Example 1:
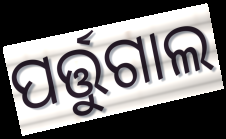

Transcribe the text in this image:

ପର୍ତ୍ତୁଗାଲ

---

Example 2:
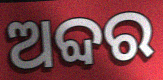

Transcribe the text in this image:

ଅବ୍ଦର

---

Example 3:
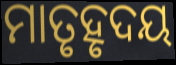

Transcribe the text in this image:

ମାତୃହୃଦୟ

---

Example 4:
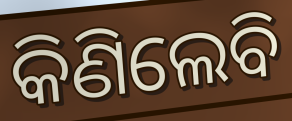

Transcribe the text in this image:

କିଣିଲେବି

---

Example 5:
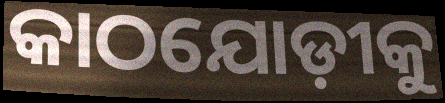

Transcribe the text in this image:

କାଠଯୋଡ଼ୀକୁ